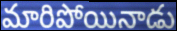
మారిపోయినాడు